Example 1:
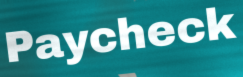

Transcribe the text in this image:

Paycheck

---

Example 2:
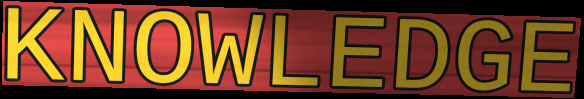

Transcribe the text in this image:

KNOWLEDGE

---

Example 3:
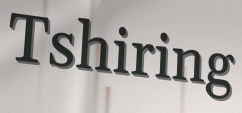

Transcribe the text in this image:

Tshiring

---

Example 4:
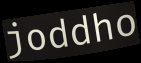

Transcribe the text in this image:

joddho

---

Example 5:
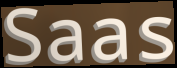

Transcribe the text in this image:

Saas